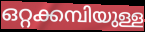
ഒറ്റക്കമ്പിയുള്ള